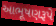
આભૂષણરૂપે